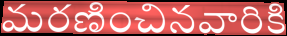
మరణించినవారికి